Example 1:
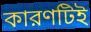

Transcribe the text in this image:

কারণটিই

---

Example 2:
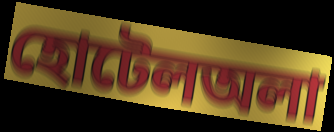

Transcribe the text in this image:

হোটেলঅলা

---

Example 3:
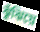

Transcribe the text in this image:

ঝুঁঝিয়ে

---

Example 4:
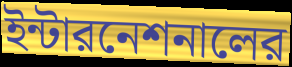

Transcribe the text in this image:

ইন্টারনেশনালের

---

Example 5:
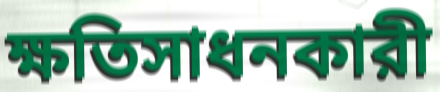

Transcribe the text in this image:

ক্ষতিসাধনকারী